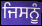
ਜਿਸਨੂੰ